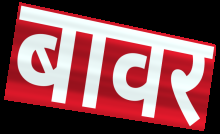
बावर